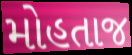
મોહતાજ